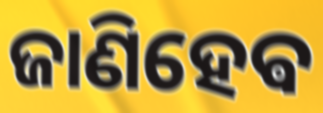
ଜାଣିହେଵ